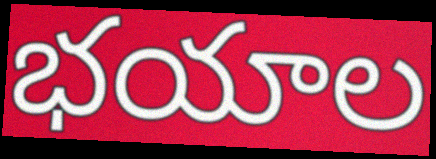
భయాల